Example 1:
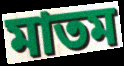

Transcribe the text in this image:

মাতম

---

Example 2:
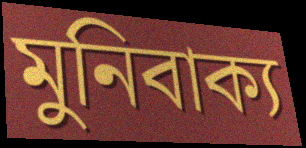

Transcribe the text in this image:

মুনিবাক্য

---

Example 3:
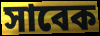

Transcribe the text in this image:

সাবেক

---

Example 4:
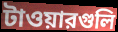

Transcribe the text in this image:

টাওয়ারগুলি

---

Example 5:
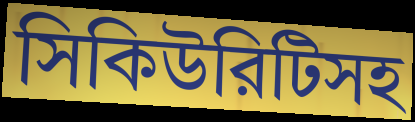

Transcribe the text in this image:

সিকিউরিটিসহ